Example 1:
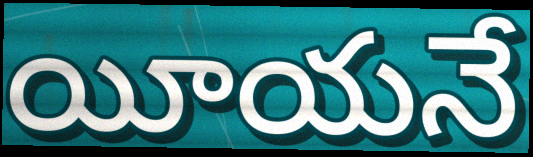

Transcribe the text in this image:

యీయనే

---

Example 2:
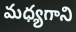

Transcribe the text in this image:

మధ్యగాని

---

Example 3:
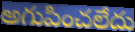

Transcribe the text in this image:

అగుపించలేదు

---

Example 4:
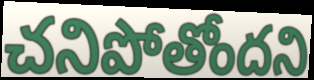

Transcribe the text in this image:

చనిపోతోందని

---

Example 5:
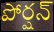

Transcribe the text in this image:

పోర్షన్